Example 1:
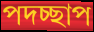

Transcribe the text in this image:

পদচ্ছাপ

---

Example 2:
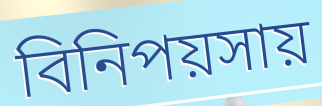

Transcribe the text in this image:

বিনিপয়সায়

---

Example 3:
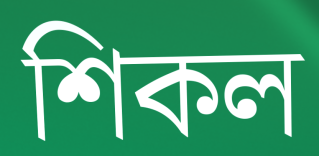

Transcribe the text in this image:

শিকল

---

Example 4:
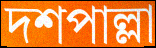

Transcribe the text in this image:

দশপাল্লা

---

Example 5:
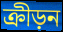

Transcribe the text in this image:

ক্রীড়ন